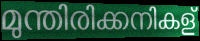
മുന്തിരിക്കനികള്